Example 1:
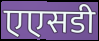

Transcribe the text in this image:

एएसडी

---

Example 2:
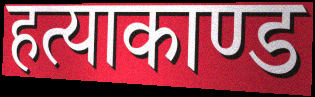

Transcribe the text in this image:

हत्याकाण्ड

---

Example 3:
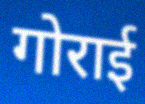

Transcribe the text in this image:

गोराई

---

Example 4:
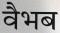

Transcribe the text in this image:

वैभब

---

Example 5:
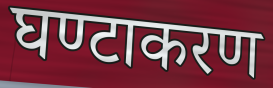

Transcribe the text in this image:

घण्टाकरण